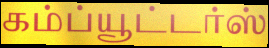
கம்ப்யூட்டர்ஸ்